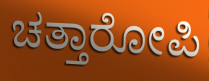
ಚತ್ತಾರೋಪಿ